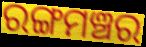
ରଙ୍ଗମଞ୍ଚର